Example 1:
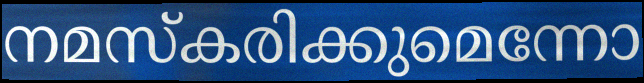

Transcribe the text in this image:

നമസ്കരിക്കുമെന്നോ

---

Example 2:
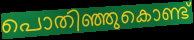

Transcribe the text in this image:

പൊതിഞ്ഞുകൊണ്ട്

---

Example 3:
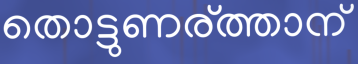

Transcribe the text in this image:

തൊട്ടുണര്ത്താന്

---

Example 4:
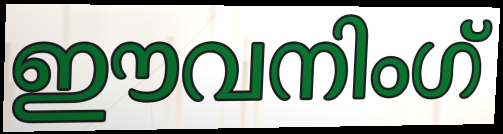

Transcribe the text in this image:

ഈവനിംഗ്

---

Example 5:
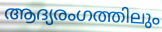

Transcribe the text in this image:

ആദ്യരംഗത്തിലും